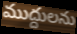
ముద్దులను